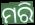
ମରି